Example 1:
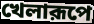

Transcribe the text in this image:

খেলারূপে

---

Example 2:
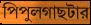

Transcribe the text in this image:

পিপুলগাছটার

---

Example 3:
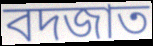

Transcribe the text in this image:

বদজাত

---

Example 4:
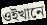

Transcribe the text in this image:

ওইখানে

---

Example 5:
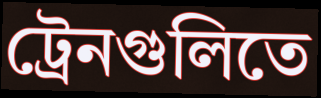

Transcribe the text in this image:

ট্রেনগুলিতে